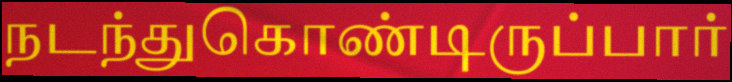
நடந்துகொண்டிருப்பார்